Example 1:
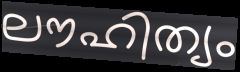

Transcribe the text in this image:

ലൗഹിത്യം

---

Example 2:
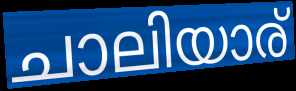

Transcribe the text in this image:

ചാലിയാര്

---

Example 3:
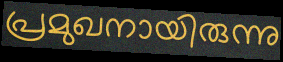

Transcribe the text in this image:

പ്രമുഖനായിരുന്നു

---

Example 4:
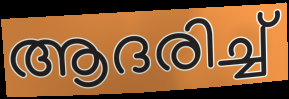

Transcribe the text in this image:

ആദരിച്ച്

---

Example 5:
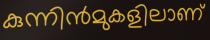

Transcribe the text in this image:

കുന്നിൻമുകളിലാണ്